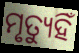
ମୃତ୍ୟୁହିଁ